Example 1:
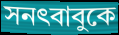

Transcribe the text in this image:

সনৎবাবুকে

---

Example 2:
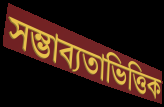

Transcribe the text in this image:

সম্ভাব্যতাভিত্তিক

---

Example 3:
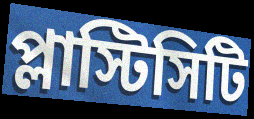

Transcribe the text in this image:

প্লাস্টিসিটি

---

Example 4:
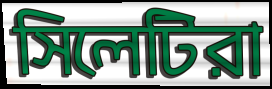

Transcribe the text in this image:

সিলেটিরা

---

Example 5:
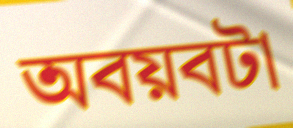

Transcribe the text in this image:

অবয়বটা